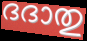
ദദാതു